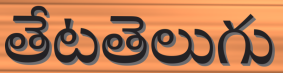
తేటతెలుగు